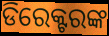
ଡିରେକ୍ଟରଙ୍କ